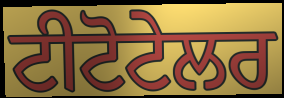
ਟੀਟੋਟੇਲਰ